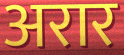
अरार